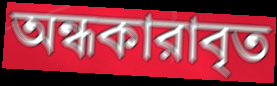
অন্ধকারাবৃত